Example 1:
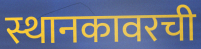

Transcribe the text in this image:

स्थानकावरची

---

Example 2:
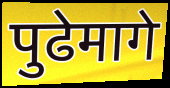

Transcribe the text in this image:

पुढेमागे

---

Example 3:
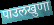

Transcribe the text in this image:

पाउलखुणा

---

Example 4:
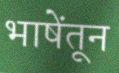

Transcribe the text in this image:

भाषेंतून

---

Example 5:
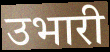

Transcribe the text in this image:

उभारी